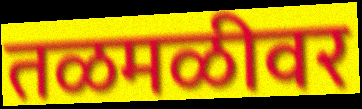
तळमळीवर